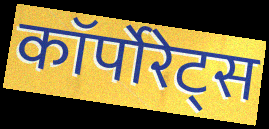
कॉर्पोरेट्स